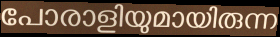
പോരാളിയുമായിരുന്ന